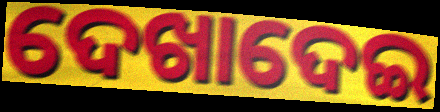
ଦେଖାଦେଇ